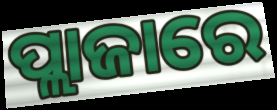
ପ୍ଲାଜାରେ